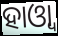
ହାଓ୍ୱା